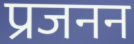
प्रजनन